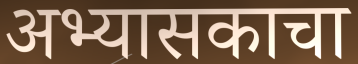
अभ्यासकाचा